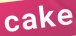
cake